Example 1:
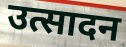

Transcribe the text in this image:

उत्सादन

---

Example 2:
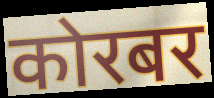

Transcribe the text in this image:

कोरबर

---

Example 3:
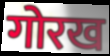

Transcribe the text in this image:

गोरख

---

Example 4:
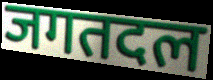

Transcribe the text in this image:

जगतदल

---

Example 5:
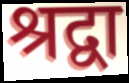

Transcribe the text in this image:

श्रद्वा